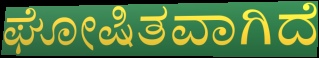
ಘೋಷಿತವಾಗಿದೆ